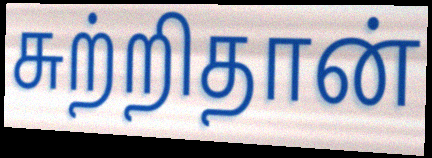
சுற்றிதான்